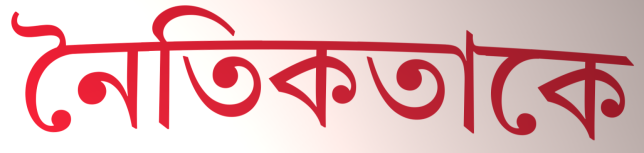
নৈতিকতাকে